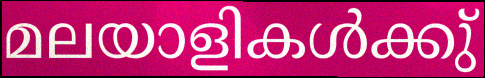
മലയാളികൾക്കു്